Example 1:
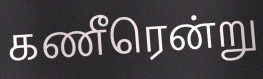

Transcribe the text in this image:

கணீரென்று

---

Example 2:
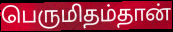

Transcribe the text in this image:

பெருமிதம்தான்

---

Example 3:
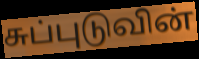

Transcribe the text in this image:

சுப்புடுவின்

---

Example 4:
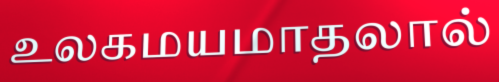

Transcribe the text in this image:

உலகமயமாதலால்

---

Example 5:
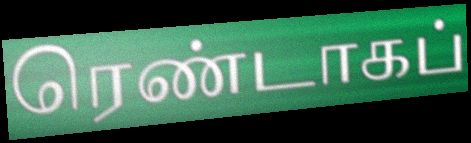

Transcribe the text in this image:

ரெண்டாகப்